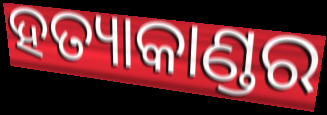
ହତ୍ୟାକାଣ୍ଡର